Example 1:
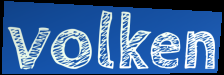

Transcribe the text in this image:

volken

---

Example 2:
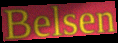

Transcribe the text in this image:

Belsen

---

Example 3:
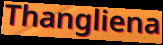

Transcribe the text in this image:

Thangliena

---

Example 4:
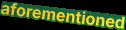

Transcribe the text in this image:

aforementioned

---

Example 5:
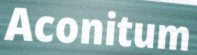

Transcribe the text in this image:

Aconitum